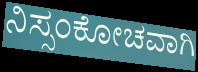
ನಿಸ್ಸಂಕೋಚವಾಗಿ